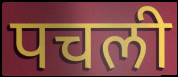
पचली